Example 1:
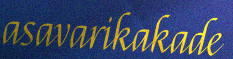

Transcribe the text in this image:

asavarikakade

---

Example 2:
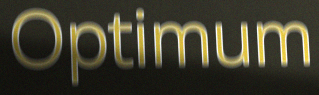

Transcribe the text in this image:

Optimum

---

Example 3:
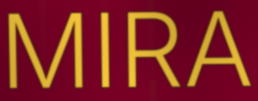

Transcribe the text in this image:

MIRA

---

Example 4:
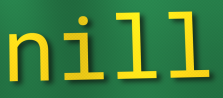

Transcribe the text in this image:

nill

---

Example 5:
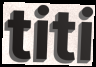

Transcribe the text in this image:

titi